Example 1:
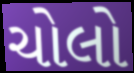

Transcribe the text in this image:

ચોલો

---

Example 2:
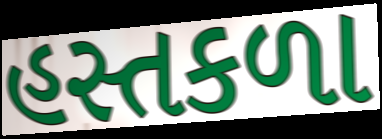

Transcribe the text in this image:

હસ્તકળા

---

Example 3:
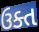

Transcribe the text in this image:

ઉક્ત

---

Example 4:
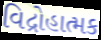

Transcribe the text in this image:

વિદ્રોહાત્મક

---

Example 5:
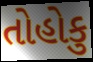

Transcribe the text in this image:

તોહોકુ